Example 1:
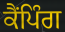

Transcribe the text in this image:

ਕੈਂਪਿੰਗ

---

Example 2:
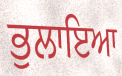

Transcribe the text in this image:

ਭੁਲਾਇਆ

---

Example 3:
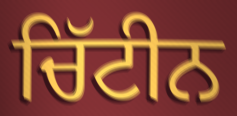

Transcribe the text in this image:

ਚਿੱਟੀਨ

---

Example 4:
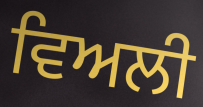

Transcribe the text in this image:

ਵਿਅਲੀ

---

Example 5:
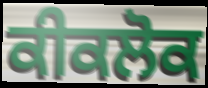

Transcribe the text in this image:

ਕੀਕਲੋਕ